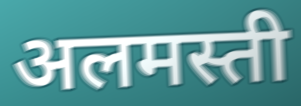
अलमस्ती